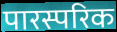
पारस्परिक